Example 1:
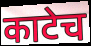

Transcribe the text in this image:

काटेच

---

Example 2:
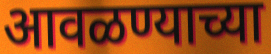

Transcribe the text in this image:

आवळण्याच्या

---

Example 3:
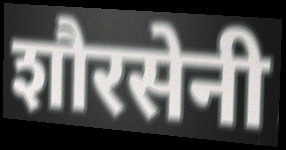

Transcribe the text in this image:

शौरसेनी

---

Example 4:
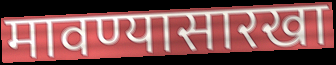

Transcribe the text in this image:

मावण्यासारखा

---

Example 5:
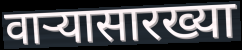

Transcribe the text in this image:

वाऱ्यासारख्या